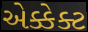
એક્કેક્ટ